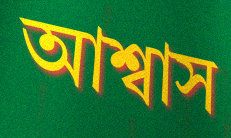
আশ্বাস